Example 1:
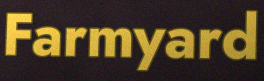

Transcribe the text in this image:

Farmyard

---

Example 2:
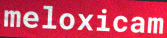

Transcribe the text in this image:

meloxicam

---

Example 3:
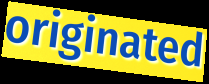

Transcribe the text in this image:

originated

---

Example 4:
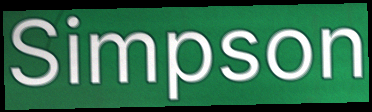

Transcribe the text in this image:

Simpson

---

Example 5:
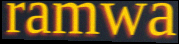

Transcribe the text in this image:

ramwa